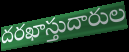
దరఖాస్తుదారుల